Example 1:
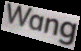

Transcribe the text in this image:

Wang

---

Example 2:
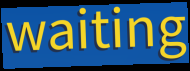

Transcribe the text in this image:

waiting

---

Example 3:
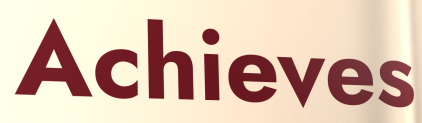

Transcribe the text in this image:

Achieves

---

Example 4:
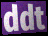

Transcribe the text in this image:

ddt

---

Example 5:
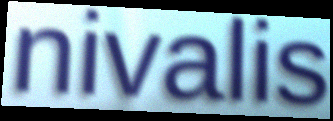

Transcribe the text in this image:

nivalis